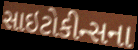
સાઇટોકીન્સના